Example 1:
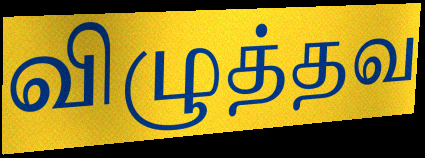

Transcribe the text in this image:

விழுத்தவ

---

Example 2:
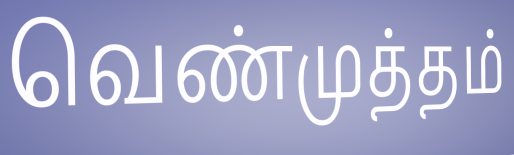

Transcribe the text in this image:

வெண்முத்தம்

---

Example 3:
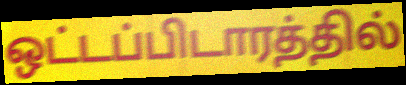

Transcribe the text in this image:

ஒட்டப்பிடாரத்தில்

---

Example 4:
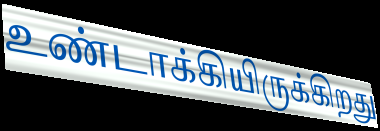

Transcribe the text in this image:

உண்டாக்கியிருக்கிறது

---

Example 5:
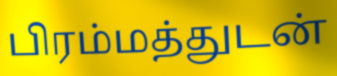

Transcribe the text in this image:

பிரம்மத்துடன்